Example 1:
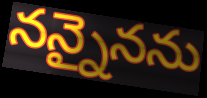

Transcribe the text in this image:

నన్నైనను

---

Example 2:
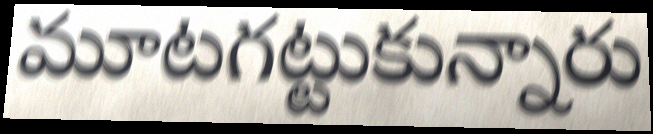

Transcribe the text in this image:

మూటగట్టుకున్నారు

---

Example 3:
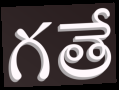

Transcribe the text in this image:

గతే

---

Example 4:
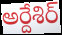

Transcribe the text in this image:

అర్దేశిర్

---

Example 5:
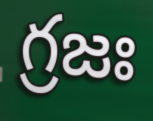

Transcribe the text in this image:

గ్రజః